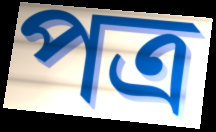
পত্র